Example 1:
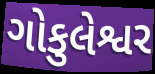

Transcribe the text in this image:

ગોકુલેશ્વર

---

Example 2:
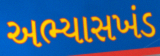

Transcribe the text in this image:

અભ્યાસખંડ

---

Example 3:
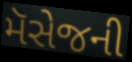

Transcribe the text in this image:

મૅસેજની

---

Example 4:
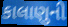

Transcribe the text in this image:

કાલાણુની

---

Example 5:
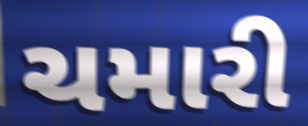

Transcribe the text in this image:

ચમારી